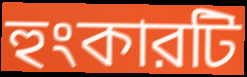
হুংকারটি